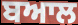
ਬਆਲ